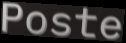
Poste